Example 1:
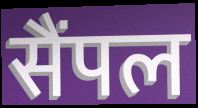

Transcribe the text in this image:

सैंपल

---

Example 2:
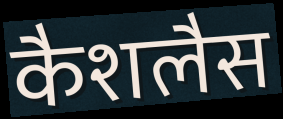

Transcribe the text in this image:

कैशलैस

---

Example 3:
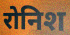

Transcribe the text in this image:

रोनिश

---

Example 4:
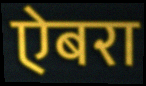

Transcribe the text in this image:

ऐबरा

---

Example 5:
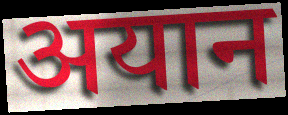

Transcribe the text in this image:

अयान